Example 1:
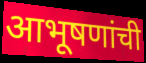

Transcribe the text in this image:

आभूषणांची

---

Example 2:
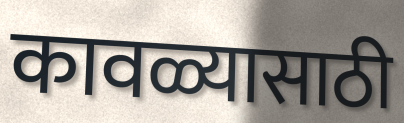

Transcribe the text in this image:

कावळ्यासाठी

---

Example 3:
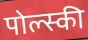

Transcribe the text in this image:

पोल्स्की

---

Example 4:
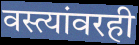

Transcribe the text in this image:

वस्त्यांवरही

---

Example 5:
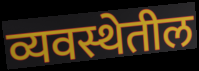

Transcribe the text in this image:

व्यवस्थेतील